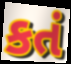
કતં